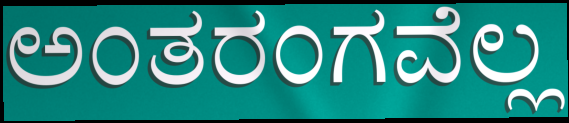
ಅಂತರಂಗವೆಲ್ಲ